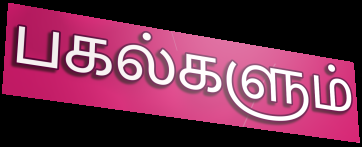
பகல்களும்